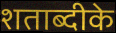
शताब्दीके